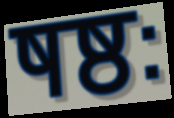
षष्ठः